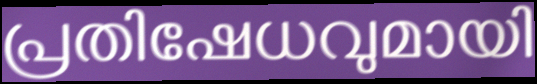
പ്രതിഷേധവുമായി